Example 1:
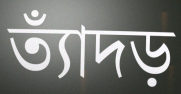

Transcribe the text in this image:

ত্যাঁদড়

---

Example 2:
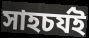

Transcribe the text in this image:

সাহচর্যই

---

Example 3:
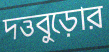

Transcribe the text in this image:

দত্তবুড়োর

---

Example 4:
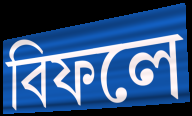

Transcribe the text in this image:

বিফলে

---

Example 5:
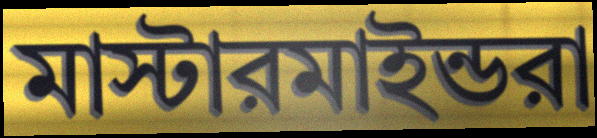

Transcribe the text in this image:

মাস্টারমাইন্ডরা